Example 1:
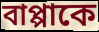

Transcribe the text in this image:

বাপ্পাকে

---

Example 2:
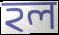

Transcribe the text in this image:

হল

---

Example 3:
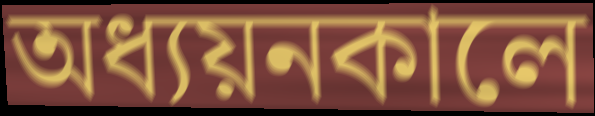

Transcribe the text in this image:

অধ্যয়নকালে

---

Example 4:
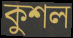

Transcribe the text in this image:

কুশল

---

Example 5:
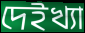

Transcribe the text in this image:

দেইখ্যা